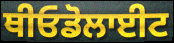
ਥੀਓਡੋਲਾਈਟ